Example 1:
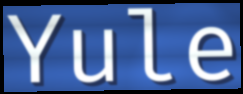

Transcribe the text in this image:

Yule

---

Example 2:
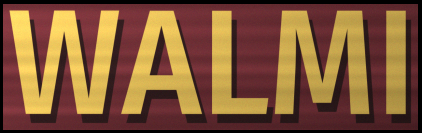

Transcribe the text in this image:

WALMI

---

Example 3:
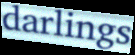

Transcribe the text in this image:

darlings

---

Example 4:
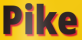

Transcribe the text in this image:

Pike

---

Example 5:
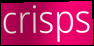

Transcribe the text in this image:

crisps